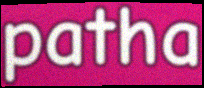
patha